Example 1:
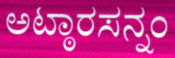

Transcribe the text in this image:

ಅಟ್ಠಾರಸನ್ನಂ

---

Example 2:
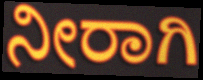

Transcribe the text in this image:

ನೀರಾಗಿ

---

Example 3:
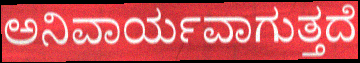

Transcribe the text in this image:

ಅನಿವಾರ್ಯವಾಗುತ್ತದೆ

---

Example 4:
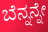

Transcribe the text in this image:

ಬೆನ್ನನ್ನೇ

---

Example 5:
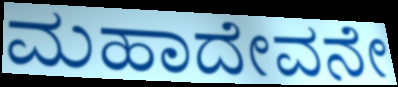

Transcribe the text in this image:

ಮಹಾದೇವನೇ